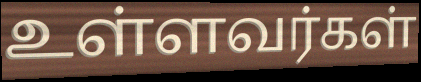
உள்ளவர்கள்